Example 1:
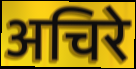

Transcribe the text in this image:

अचिरे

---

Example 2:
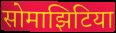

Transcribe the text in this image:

सोमाझिटिया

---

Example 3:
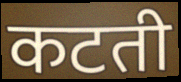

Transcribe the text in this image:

कटती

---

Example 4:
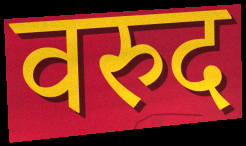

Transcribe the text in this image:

वरुद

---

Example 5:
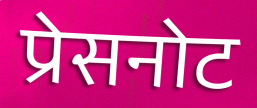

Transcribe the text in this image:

प्रेसनोट